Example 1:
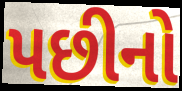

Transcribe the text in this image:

પછીનો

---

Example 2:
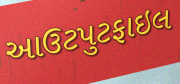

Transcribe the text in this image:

આઉટપુટફાઇલ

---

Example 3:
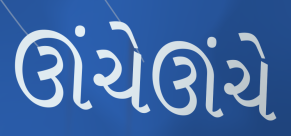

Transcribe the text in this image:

ઊંચેઊંચે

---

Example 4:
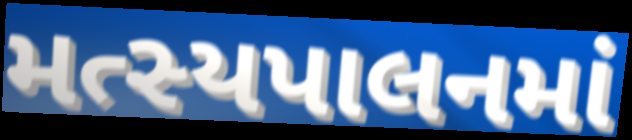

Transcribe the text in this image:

મત્સ્યપાલનમાં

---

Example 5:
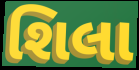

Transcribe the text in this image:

શિલા